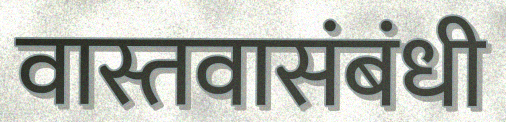
वास्तवासंबंधी